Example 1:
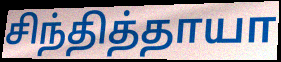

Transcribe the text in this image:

சிந்தித்தாயா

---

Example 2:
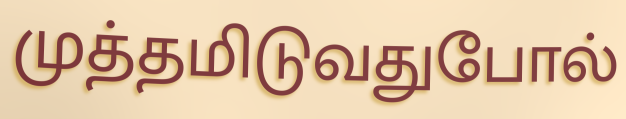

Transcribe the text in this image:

முத்தமிடுவதுபோல்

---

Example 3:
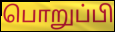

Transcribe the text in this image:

பொறுப்பி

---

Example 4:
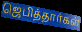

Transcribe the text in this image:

ஜெபித்தார்கள்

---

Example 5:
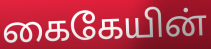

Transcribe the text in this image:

கைகேயின்